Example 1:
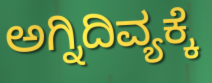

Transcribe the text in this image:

ಅಗ್ನಿದಿವ್ಯಕ್ಕೆ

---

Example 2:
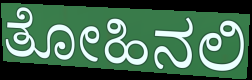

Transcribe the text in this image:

ತೋಹಿನಲಿ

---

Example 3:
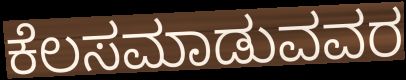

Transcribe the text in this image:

ಕೆಲಸಮಾಡುವವರ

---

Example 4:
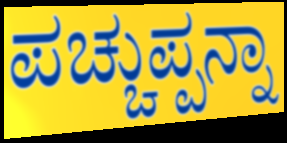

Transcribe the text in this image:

ಪಚ್ಚುಪ್ಪನ್ನಾ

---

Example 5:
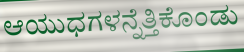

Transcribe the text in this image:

ಆಯುಧಗಳನ್ನೆತ್ತಿಕೊಂಡು